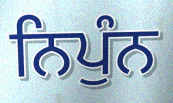
ਨਿਪੁੰਨ